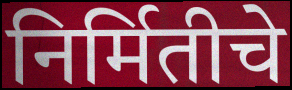
निर्मितीचे